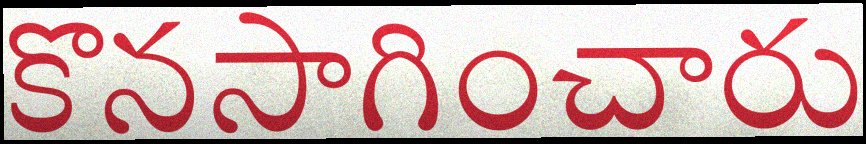
కొనసాగించారు